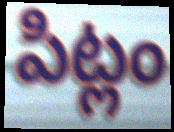
పిట్లం